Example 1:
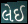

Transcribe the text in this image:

લેઈ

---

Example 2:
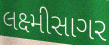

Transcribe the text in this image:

લક્ષ્મીસાગર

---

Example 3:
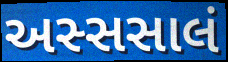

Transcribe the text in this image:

અસ્સસાલં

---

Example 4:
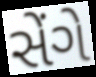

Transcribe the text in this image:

સેંગે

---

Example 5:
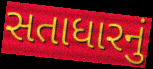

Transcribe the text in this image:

સતાધારનું